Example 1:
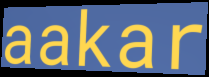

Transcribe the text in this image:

aakar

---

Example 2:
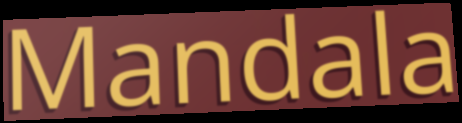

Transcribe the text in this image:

Mandala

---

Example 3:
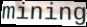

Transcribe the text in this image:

mining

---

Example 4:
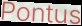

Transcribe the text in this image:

Pontus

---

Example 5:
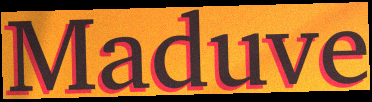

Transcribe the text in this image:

Maduve